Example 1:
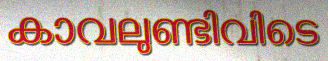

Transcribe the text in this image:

കാവലുണ്ടിവിടെ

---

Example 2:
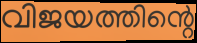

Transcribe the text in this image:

വിജയത്തിന്റെ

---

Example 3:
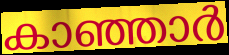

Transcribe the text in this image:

കാഞ്ഞാർ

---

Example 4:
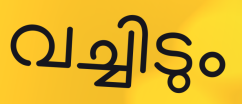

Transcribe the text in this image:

വച്ചിടും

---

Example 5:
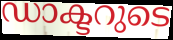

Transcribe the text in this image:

ഡാക്ടറുടെ